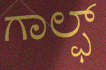
ಗಾಲ್ಫ್